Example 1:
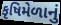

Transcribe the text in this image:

કૃષિમેળાનું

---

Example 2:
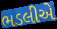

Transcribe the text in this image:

ભડલીએ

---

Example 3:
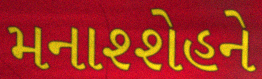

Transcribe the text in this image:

મનાશ્શેહને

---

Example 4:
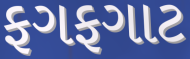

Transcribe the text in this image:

ફગફગાટ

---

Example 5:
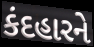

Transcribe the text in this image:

કંદહારને